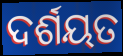
ଦର୍ଶୟତ